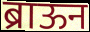
ब्राऊन